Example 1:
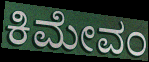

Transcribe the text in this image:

ಕಿಮೇವಂ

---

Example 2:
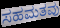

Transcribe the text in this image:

ಸಹಮತವು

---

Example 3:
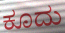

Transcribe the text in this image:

ಕೂದು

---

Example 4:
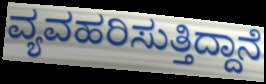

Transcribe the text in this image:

ವ್ಯವಹರಿಸುತ್ತಿದ್ದಾನೆ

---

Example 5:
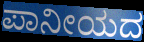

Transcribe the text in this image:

ಪಾನೀಯದ